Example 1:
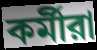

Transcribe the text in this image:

কর্মীরা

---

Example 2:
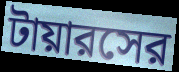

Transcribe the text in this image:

টায়ারসের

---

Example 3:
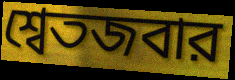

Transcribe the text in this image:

শ্বেতজবার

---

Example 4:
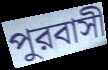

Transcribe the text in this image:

পুরবাসী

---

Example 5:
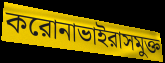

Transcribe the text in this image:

করোনাভাইরাসমুক্ত